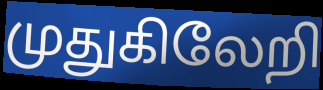
முதுகிலேறி